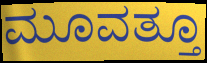
ಮೂವತ್ತೂ